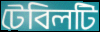
টেবিলটি